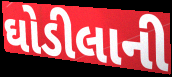
ઘોડીલાની